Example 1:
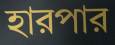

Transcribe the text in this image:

হারপার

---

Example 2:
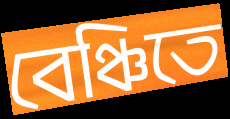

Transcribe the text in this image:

বেঞ্চিতে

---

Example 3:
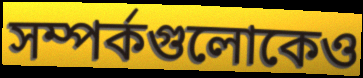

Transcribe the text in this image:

সম্পর্কগুলোকেও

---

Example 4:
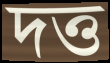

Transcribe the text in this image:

দত্ত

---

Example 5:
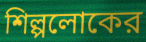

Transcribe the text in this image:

শিল্পলোকের